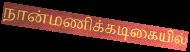
நான்மணிக்கடிகையில்